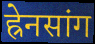
ह्रेनसांग